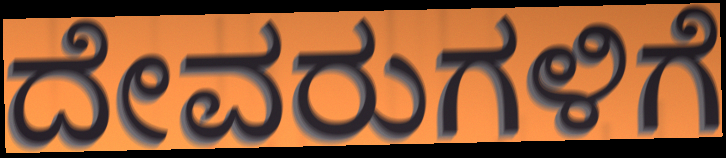
ದೇವರುಗಳಿಗೆ